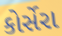
કોર્સેરા